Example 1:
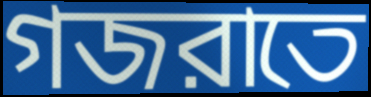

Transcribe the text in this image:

গজরাতে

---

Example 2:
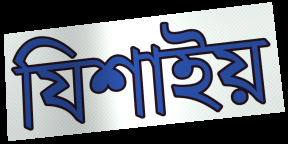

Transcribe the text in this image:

যিশাইয়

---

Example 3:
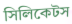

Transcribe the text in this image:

সিলিকেটস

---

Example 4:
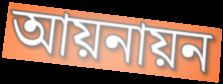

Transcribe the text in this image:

আয়নায়ন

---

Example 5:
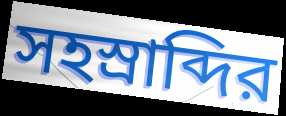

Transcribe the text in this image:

সহস্রাব্দির